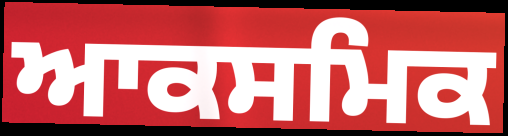
ਆਕਸਮਿਕ